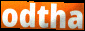
odtha